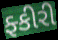
ફ્કીરી